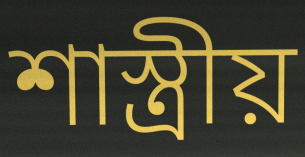
শাস্ত্ৰীয়